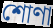
শোণা